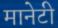
मानेटी